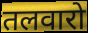
तलवारो